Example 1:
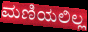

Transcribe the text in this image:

ಮಣಿಯಲಿಲ್ಲ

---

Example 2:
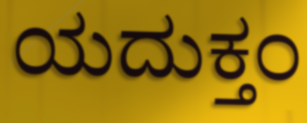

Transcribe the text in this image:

ಯದುಕ್ತಂ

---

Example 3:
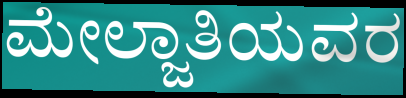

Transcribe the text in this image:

ಮೇಲ್ಜಾತಿಯವರ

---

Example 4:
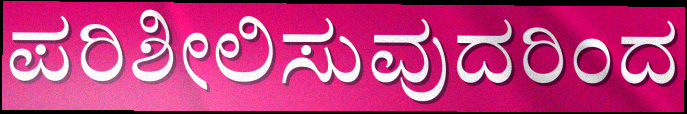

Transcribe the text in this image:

ಪರಿಶೀಲಿಸುವುದರಿಂದ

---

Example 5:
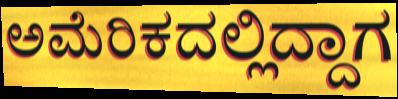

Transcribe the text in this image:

ಅಮೆರಿಕದಲ್ಲಿದ್ದಾಗ